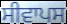
ਸੀਵਾਪਸ